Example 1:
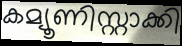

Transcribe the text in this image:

കമ്യൂണിസ്റ്റാക്കി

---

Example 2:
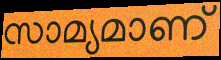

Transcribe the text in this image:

സാമ്യമാണ്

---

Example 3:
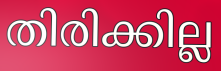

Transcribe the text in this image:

തിരിക്കില്ല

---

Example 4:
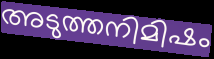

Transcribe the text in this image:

അടുത്തനിമിഷം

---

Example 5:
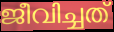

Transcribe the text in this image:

ജീവിച്ചത്